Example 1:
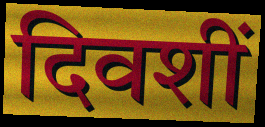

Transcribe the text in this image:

दिवशीं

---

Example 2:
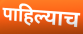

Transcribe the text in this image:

पाहिल्याच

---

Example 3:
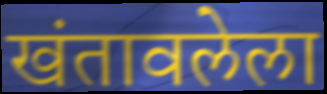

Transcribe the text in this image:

खंतावलेला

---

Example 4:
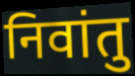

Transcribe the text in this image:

निवांतु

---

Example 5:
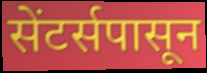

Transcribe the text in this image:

सेंटर्सपासून